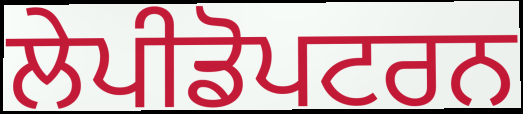
ਲੇਪੀਡੋਪਟਰਨ